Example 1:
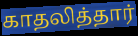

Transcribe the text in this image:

காதலித்தார்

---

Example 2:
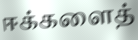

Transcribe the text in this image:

ஈக்களைத்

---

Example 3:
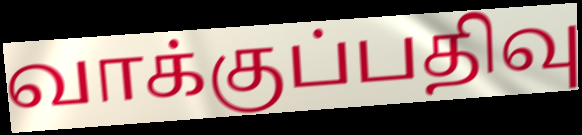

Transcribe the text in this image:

வாக்குப்பதிவு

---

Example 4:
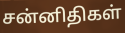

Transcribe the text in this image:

சன்னிதிகள்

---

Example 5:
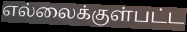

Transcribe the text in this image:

எல்லைக்குள்பட்ட